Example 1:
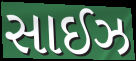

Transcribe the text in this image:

સાઈઝ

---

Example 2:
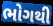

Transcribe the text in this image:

ભોગથી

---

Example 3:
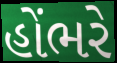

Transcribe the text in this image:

હોંભરે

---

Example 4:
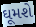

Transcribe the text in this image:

ઘૂમશે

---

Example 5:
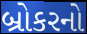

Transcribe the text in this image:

બ્રોકરનો